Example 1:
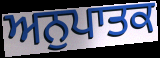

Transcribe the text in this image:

ਅਨੁਪਾਤਕ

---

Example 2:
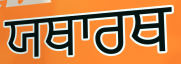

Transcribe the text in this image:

ਯਥਾਰਥ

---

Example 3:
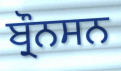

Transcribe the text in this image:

ਬ੍ਰੌਨਸਨ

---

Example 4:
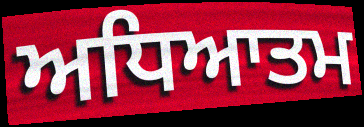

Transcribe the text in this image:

ਅਧਿਆਤਮ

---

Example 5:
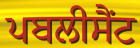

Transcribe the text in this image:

ਪਬਲੀਸੈਂਟ